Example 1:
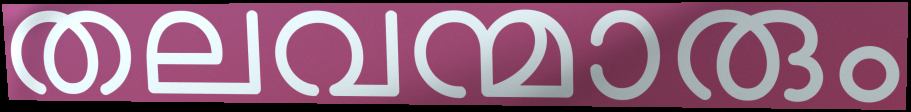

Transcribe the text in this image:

തലവന്മാരും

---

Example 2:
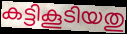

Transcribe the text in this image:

കട്ടികൂടിയതു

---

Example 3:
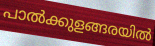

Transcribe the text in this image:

പാൽക്കുളങ്ങരയിൽ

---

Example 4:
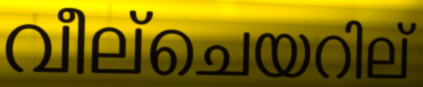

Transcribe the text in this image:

വീല്ചെയറില്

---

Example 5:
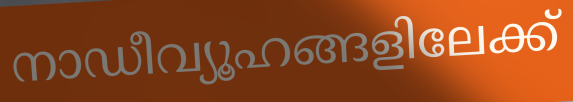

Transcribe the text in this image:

നാഡീവ്യൂഹങ്ങളിലേക്ക്